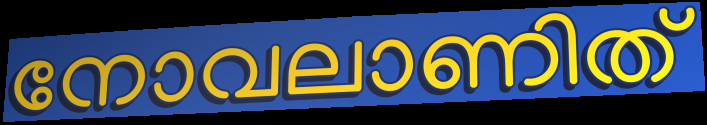
നോവലാണിത്